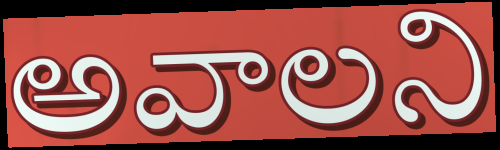
అవాలని